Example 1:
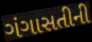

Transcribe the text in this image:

ગંગાસતીની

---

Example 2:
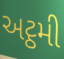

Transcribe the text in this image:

અટ્ઠમી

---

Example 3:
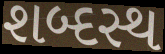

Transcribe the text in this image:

શબ્દસ્થ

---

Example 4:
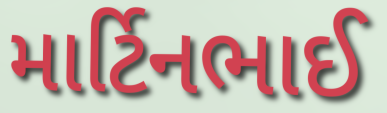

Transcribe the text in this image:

માર્ટિનભાઈ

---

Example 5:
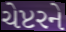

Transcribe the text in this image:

ચેપ્ટરને